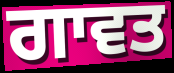
ਗਾਵਤ